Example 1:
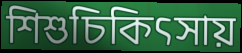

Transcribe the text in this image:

শিশুচিকিৎসায়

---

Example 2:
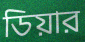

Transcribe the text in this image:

ডিয়ার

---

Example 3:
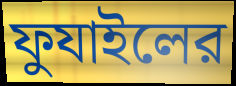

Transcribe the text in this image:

ফুযাইলের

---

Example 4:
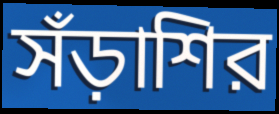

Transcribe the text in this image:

সঁড়াশির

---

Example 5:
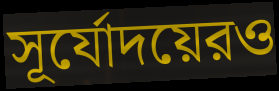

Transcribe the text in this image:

সূর্যোদয়েরও